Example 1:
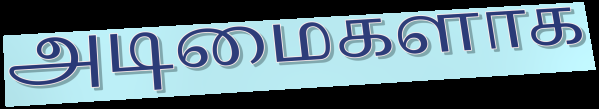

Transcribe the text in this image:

அடிமைகளாக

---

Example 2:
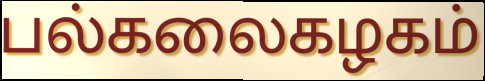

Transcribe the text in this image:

பல்கலைகழகம்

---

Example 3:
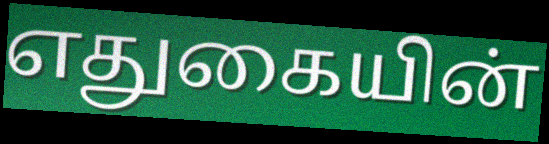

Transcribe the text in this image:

எதுகையின்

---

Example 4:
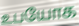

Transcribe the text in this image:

உபயோக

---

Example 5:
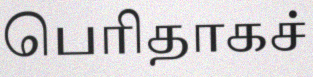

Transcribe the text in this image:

பெரிதாகச்